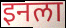
इनला